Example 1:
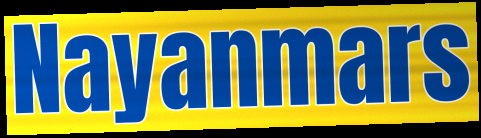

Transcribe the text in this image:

Nayanmars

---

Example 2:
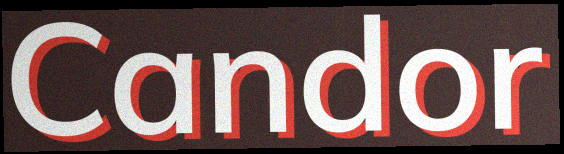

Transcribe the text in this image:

Candor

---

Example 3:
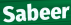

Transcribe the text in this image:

Sabeer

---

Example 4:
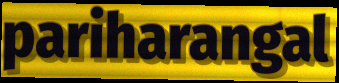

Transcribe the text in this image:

pariharangal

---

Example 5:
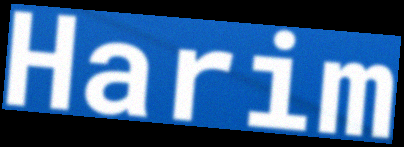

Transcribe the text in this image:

Harim